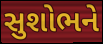
સુશોભને